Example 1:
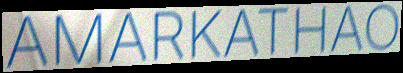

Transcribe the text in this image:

AMARKATHAO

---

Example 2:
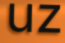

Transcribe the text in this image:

uz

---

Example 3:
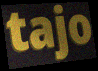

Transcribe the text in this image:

tajo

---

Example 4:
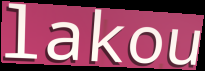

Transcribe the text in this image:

lakou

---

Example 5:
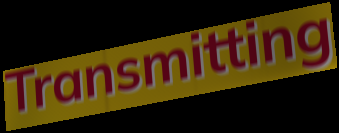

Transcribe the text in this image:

Transmitting